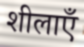
शीलाएँ